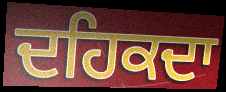
ਦਹਿਕਦਾ